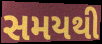
સમયથી